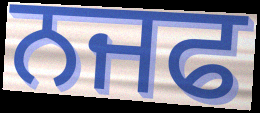
ਨਜਫ